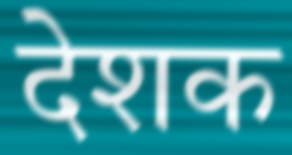
देशक